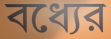
বধ্যের